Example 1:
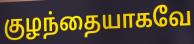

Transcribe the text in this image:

குழந்தையாகவே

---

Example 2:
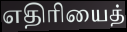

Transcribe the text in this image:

எதிரியைத்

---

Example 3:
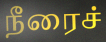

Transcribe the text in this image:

நீரைச்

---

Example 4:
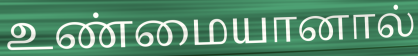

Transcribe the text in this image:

உண்மையானால்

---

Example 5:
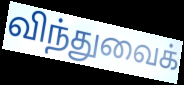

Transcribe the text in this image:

விந்துவைக்